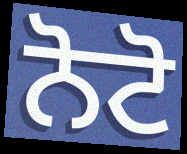
ਨੋਟੋ